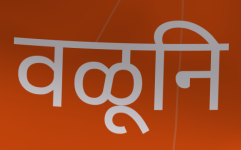
वळूनि